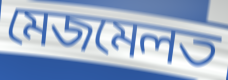
মেজমেলত